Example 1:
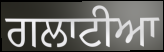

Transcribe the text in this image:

ਗਲਾਟੀਆ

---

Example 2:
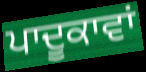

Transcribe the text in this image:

ਪਾਦੂਕਾਵਾਂ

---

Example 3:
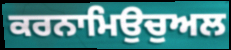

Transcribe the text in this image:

ਕਰਨਾਮਿਉਚੁਅਲ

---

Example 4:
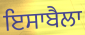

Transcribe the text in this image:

ਇਸਾਬੈਲਾ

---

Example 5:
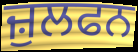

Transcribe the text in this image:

ਜ਼ੁਲਫਨ